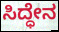
ಸಿದ್ಧೇನ